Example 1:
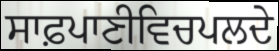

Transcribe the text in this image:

ਸਾਫ਼ਪਾਣੀਵਿਚਪਲਦੇ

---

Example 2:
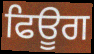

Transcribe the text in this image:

ਫਿਊਗ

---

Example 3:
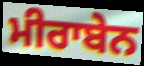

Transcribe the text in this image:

ਮੀਰਾਬੇਨ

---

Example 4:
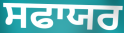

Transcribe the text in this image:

ਸਫਾਯਰ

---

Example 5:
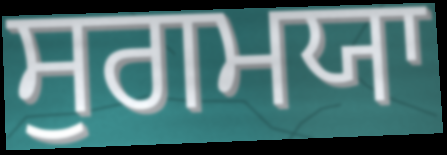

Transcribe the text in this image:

ਸੁਗਮਯਾ